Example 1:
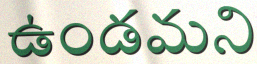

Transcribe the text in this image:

ఉండమని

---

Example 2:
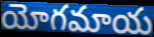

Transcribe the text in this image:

యోగమాయ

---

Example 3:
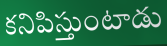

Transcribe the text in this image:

కనిపిస్తుంటాడు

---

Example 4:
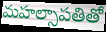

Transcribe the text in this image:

మహల్సాపతితో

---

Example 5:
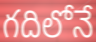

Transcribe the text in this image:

గదిలోనే